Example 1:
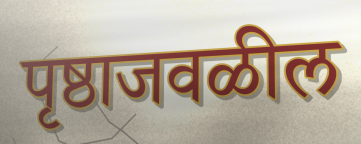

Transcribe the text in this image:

पृष्ठाजवळील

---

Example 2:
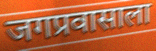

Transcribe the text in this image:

जगप्रवासाला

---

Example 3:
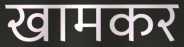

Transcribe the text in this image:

खामकर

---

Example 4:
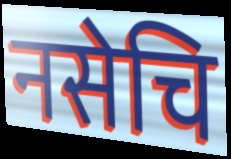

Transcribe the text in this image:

नसेचि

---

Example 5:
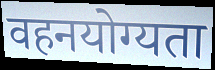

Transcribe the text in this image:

वहनयोग्यता